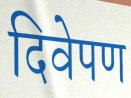
दिवेपण